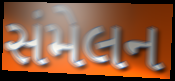
સંમેલન